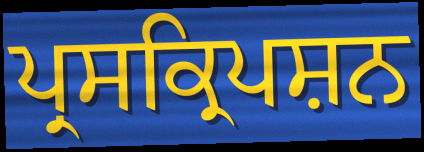
ਪ੍ਰਸਕ੍ਰਿਪਸ਼ਨ